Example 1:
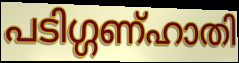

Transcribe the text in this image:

പടിഗ്ഗണ്ഹാതി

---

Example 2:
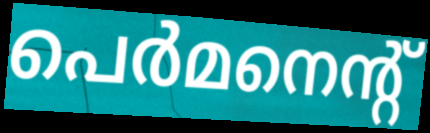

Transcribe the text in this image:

പെർമനെന്റ്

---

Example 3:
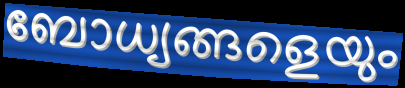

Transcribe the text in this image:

ബോധ്യങ്ങളെയും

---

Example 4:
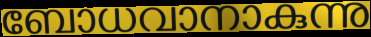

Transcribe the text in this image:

ബോധവാനാകുന്നു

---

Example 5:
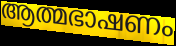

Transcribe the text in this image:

ആത്മഭാഷണം